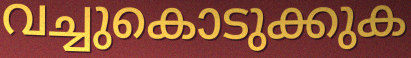
വച്ചുകൊടുക്കുക